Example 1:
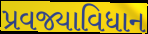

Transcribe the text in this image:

પ્રવજ્યાવિધાન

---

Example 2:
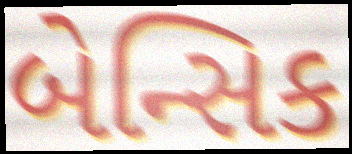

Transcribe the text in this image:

બેન્સિક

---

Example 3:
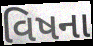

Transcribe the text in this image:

વિષના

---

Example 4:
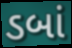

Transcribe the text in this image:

ડબાં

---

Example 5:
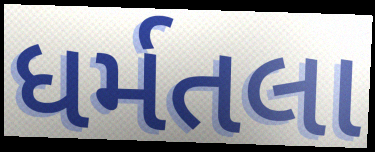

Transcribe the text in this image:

ધર્મતલા